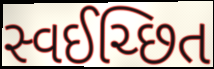
સ્વઈચ્છિત